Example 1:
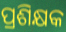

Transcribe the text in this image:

ପ୍ରଶିକ୍ଷକ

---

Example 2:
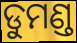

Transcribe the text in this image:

ଡୁମଣ୍ଡ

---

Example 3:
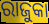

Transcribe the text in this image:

ରାଜୁକା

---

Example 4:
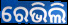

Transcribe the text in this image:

ରେଭିଲି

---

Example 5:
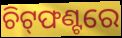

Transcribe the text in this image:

ଚିଟ୍‌ଫଣ୍ଟରେ